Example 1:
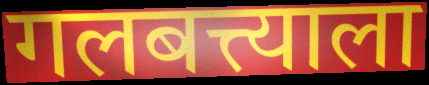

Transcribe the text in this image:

गलबत्त्याला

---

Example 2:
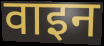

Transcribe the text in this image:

वाइन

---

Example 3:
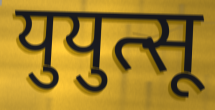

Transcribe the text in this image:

युयुत्सू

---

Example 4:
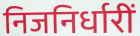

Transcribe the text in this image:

निजनिर्धारीं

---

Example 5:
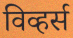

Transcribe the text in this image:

विव्हर्स